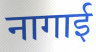
नागाई